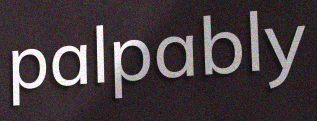
palpably